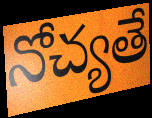
నోచ్యతే